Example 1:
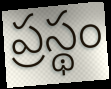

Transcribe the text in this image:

ప్రస్థం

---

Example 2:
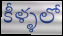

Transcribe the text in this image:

కీళ్ళలో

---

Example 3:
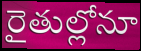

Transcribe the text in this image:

రైతుల్లోనూ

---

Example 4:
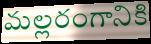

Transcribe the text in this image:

మల్లరంగానికి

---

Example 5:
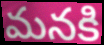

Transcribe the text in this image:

మనకి